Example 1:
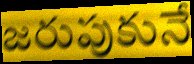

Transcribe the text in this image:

జరుపుకునే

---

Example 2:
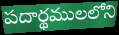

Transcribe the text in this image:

పదార్థములలోని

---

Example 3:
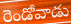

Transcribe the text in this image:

రెండోవాడు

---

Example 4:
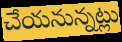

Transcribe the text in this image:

చేయనున్నట్లు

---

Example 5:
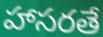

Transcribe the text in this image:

హాసరతే